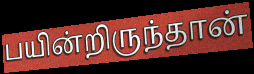
பயின்றிருந்தான்